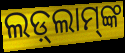
ଲଡ଼୍‍ଲାମ୍‍ଙ୍କ